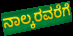
ನಾಲ್ಕರವರೆಗೆ